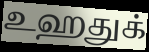
உஹதுக்